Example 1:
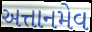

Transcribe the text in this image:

અત્તાનમેવ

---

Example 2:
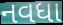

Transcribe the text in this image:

નવધા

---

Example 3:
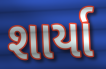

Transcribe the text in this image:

શાર્યા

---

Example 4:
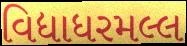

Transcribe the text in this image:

વિદ્યાધરમલ્લ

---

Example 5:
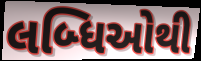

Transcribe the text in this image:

લબ્ધિઓથી